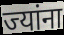
ज्यांना